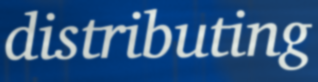
distributing